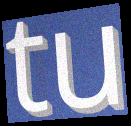
tu